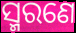
ସ୍ମରଣେ